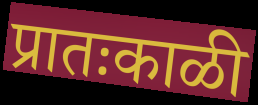
प्रातःकाळी